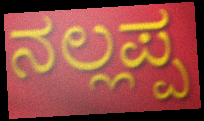
ನಲ್ಲಪ್ಪ